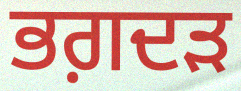
ਭਗ਼ਦੜ